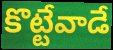
కొట్టేవాడే